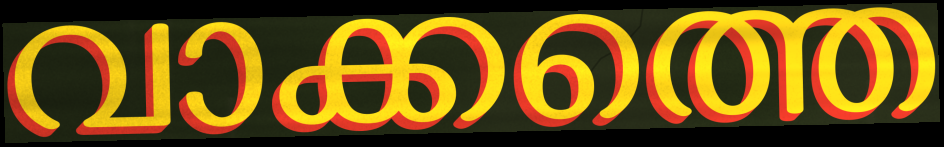
വാക്കത്തെ